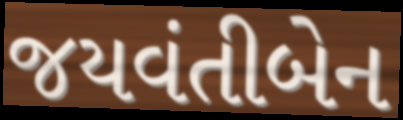
જયવંતીબેન